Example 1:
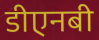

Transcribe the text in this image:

डीएनबी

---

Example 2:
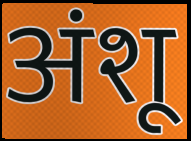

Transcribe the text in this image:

अंशू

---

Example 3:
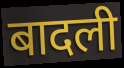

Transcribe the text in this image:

बादली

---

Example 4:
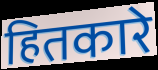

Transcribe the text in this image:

हितकारे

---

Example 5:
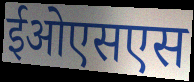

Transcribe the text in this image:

ईओएसएस